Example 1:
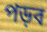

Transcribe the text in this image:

পড়ব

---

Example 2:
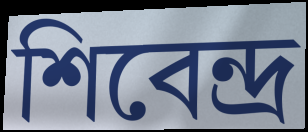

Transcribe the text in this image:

শিবেন্দ্র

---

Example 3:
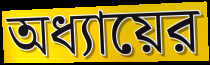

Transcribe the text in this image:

অধ্যায়ের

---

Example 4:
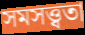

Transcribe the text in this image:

সমসত্ত্বতা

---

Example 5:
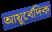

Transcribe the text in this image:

আয়ূর্বেদিক